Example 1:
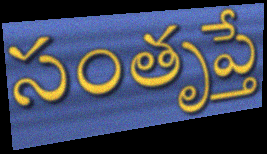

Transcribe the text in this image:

సంతృప్తే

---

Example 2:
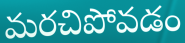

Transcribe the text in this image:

మరచిపోవడం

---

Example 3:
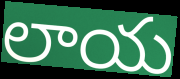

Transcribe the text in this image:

లాయ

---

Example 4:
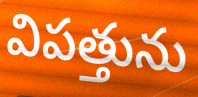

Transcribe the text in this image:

విపత్తును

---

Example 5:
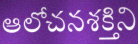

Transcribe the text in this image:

ఆలోచనశక్తిని